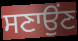
ਸਣਾਉਂਣ